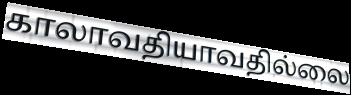
காலாவதியாவதில்லை